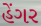
હેંગર